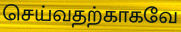
செய்வதற்காகவே